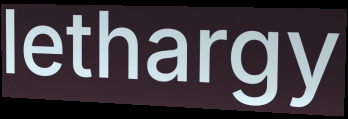
lethargy